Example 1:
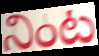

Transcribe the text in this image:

నింట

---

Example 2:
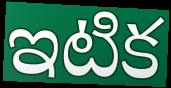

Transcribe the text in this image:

ఇటిక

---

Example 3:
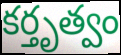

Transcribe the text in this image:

కర్తృత్వం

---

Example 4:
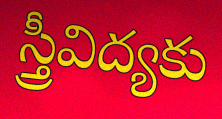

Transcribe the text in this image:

స్త్రీవిద్యకు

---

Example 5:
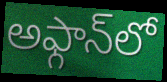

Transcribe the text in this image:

అఫ్గాన్‌లో